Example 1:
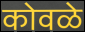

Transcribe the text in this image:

कोवळे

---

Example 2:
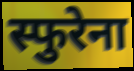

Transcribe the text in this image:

स्फुरेना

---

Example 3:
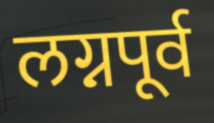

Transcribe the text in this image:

लग्नपूर्व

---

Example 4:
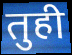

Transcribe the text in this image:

तुही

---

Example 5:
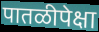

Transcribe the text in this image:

पातळीपेक्षा